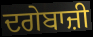
ਦਗੇਬਾਜ਼ੀ